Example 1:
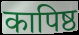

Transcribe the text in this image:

कापिष्ठ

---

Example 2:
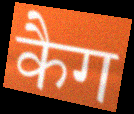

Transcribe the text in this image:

कैग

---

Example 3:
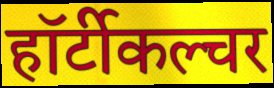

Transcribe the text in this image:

हॉर्टीकल्चर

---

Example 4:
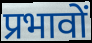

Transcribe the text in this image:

प्रभावों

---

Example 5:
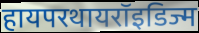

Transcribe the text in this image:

हायपरथायरॉइडिज्म